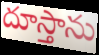
దూస్తాను